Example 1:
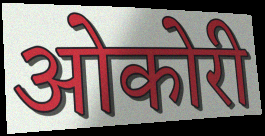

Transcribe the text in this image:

ओकोरी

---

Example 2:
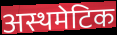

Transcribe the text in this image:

अस्थमेटिक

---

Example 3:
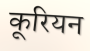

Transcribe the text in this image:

कूरियन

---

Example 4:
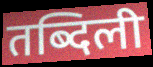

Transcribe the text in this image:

तब्दिली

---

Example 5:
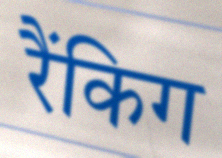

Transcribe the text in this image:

रैंकिग